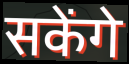
सकेंगे